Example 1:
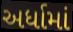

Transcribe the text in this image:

અર્ધામાં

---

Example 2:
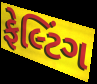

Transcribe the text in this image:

ફેલ્ટિંગ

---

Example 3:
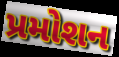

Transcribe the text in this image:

પ્રમોશન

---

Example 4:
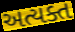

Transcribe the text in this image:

અત્યક્ત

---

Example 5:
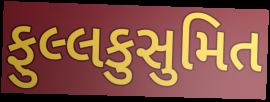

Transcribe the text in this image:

ફુલ્લકુસુમિત